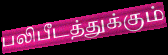
பலிபீடத்துக்கும்